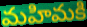
మహిమకి